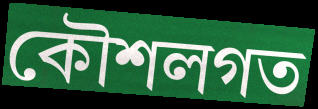
কৌশলগত